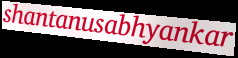
shantanusabhyankar